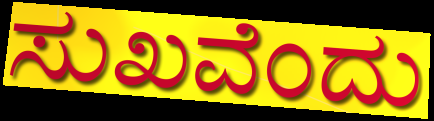
ಸುಖವೆಂದು